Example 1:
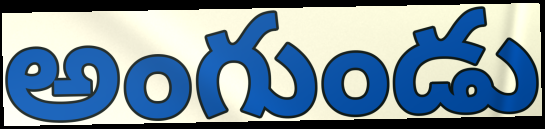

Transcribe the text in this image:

అంగుండు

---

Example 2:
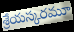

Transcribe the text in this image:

శ్రేయస్కరమూ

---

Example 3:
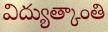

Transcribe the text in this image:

విద్యుత్కాంతి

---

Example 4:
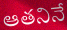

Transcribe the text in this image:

ఆతనినే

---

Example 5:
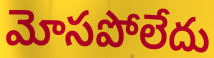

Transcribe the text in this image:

మోసపోలేదు